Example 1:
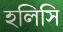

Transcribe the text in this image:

হলিসি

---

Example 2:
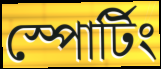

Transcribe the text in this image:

স্পোর্টিং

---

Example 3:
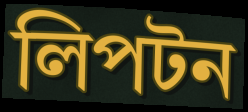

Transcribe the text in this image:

লিপটন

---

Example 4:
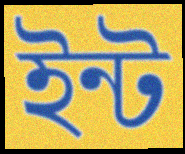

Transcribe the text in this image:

ইন্ট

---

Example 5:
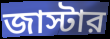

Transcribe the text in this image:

জাস্টার